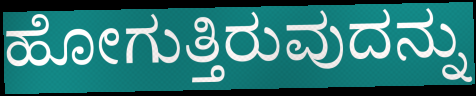
ಹೋಗುತ್ತಿರುವುದನ್ನು